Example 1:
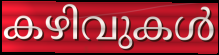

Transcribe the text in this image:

കഴിവുകൾ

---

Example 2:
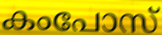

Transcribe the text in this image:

കംപോസ്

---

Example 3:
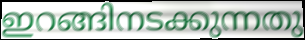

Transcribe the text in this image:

ഇറങ്ങിനടക്കുന്നതു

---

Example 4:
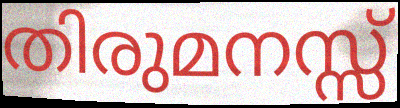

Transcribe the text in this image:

തിരുമനസ്സ്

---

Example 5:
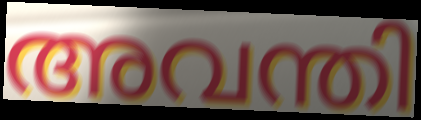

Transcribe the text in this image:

അവന്തി